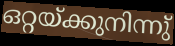
ഒറ്റയ്ക്കുനിന്നു്